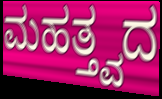
ಮಹತ್ತ್ವದ